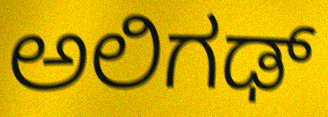
ಅಲಿಗಢ್